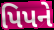
પિપને